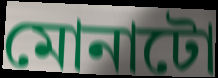
মোনাটো